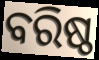
ବରିଷ୍ଠ